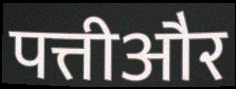
पत्तीऔर